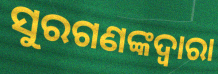
ସୁରଗଣଙ୍କଦ୍ୱାରା